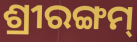
ଶ୍ରୀରଙ୍ଗମ୍